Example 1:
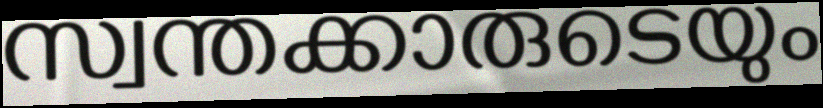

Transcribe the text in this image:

സ്വന്തക്കാരുടെയും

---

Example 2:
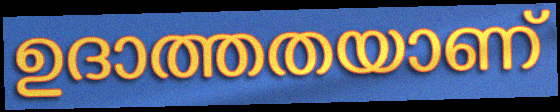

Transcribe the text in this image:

ഉദാത്തതയാണ്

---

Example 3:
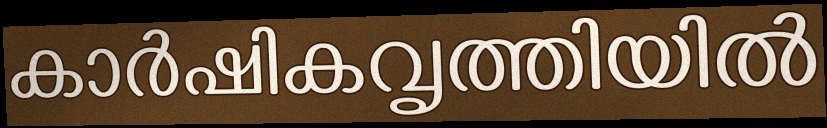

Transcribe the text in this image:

കാർഷികവൃത്തിയിൽ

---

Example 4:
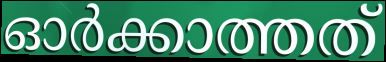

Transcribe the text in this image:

ഓർക്കാത്തത്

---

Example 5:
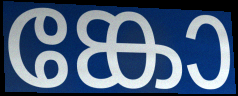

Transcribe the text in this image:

ങ്കോ